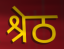
श्रेठ